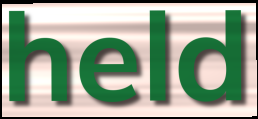
held